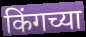
किंगच्या